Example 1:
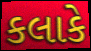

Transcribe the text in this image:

કલાકે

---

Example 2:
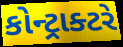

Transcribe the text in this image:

કોન્ટ્રાક્ટરે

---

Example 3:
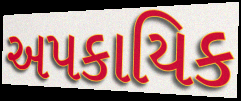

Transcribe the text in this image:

અપકાયિક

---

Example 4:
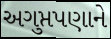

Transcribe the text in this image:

અગુપ્તપણાને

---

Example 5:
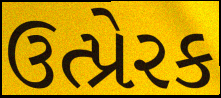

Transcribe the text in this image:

ઉત્પ્રેરક